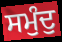
ਸਮੁੰਦੁ